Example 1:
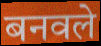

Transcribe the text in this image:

बनवले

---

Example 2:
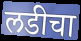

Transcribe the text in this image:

लडीचा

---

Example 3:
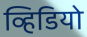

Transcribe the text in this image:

व्हिडियो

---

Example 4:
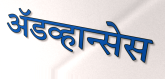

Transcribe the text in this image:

ॲडव्हान्सेस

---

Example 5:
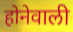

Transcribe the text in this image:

होनेवाली